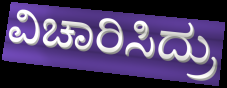
ವಿಚಾರಿಸಿದ್ರು